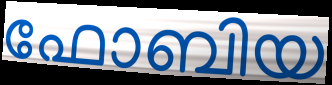
ഫോബിയ